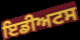
ਇਡੀਅਟਸ